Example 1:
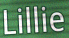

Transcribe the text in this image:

Lillie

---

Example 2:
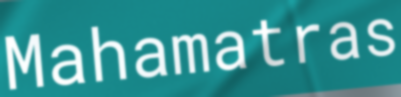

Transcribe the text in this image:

Mahamatras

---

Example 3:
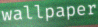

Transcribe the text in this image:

wallpaper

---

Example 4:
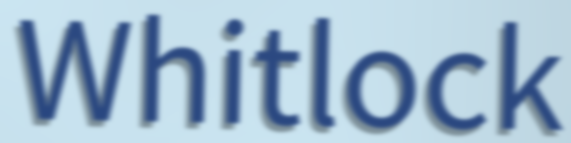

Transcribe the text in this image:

Whitlock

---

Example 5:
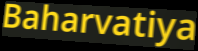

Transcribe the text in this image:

Baharvatiya